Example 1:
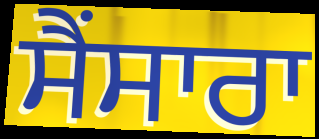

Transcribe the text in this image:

ਸੈਂਸਾਰਾ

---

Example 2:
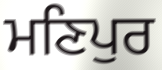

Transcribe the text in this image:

ਮਣਿਪੁਰ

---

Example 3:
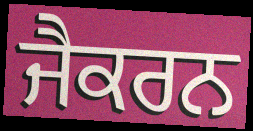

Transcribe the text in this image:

ਜੈਕਰਨ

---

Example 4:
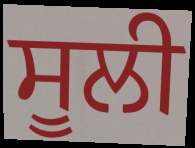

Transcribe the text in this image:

ਸੂਲੀ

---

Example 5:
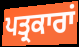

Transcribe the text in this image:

ਪਤ੍ਰਕਾਰਾਂ